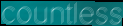
countless